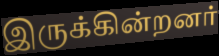
இருக்கின்றனர்